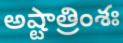
అష్టాత్రింశః